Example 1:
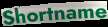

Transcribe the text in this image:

Shortname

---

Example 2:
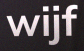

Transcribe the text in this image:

wijf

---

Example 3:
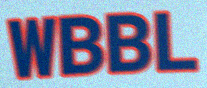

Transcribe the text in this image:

WBBL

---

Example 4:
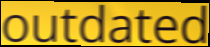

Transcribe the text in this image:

outdated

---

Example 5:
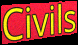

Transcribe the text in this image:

Civils